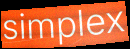
simplex